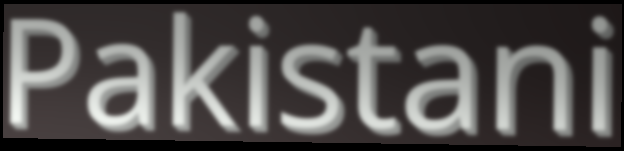
Pakistani